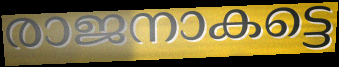
രാജനാകട്ടെ